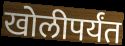
खोलीपर्यंत